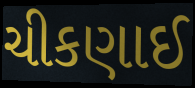
ચીકણાઈ